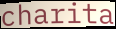
charita